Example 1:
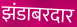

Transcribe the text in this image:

झंडाबरदार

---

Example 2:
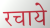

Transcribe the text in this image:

रचाये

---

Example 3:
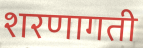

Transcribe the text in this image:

शरणागती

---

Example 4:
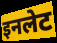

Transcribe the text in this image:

इनलेट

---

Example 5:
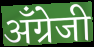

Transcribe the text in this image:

अँग्रेजी